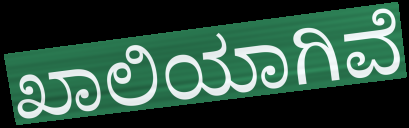
ಖಾಲಿಯಾಗಿವೆ